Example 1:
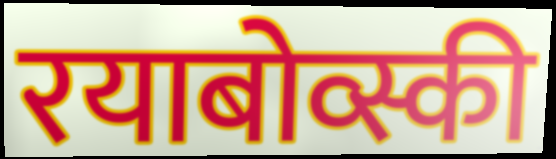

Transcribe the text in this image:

रयाबोव्स्की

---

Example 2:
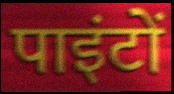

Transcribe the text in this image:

पाइंटों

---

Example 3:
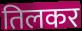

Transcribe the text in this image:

तिलकर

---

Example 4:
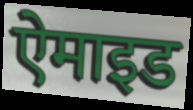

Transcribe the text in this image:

ऐमाइड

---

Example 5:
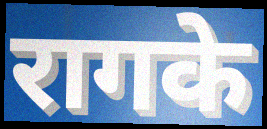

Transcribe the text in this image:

रागके